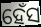
ହେଁସ